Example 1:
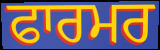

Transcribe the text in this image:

ਫਾਰਮਰ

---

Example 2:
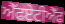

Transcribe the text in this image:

ਐੱਫਏਟੀਐੱਫ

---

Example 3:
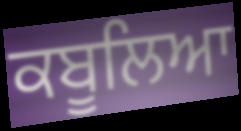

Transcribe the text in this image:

ਕਬੂਲਿਆ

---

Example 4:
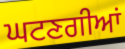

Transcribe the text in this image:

ਘਟਣਗੀਆਂ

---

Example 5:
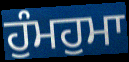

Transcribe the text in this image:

ਹੁੰਮਹੁਮਾ